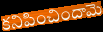
కనిపించిందామె